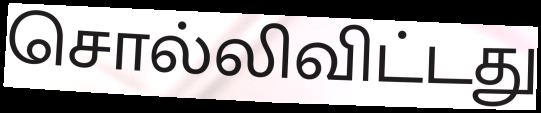
சொல்லிவிட்டது